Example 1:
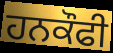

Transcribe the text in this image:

ਹਨਕੌਫੀ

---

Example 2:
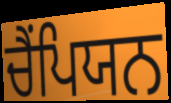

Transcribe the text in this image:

ਚੈੰਪਿਯਨ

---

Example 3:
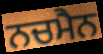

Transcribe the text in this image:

ਨਚਮੈਨ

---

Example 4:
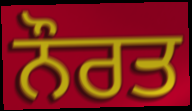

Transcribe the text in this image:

ਨੌਰਤ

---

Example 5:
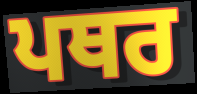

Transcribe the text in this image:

ਪਥਰ